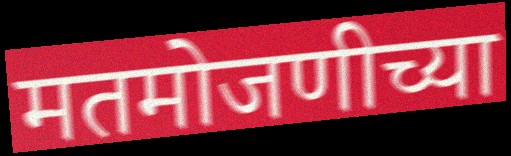
मतमोजणीच्या